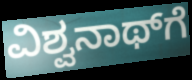
ವಿಶ್ವನಾಥ್‌ಗೆ